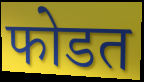
फोडत